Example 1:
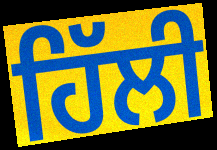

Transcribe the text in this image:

ਹਿੱਲੀ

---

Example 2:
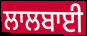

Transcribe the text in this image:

ਲਾਲਬਾਈ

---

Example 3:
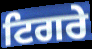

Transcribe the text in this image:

ਟਿਗਰੇ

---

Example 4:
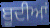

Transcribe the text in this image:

ਬੂਦੀਆਂ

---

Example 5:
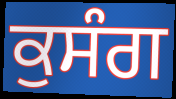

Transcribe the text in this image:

ਕੁਸੰਗ